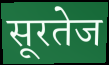
सूरतेज